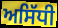
ਅਸਿੱਧੀ